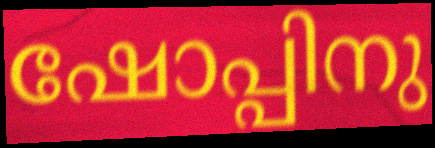
ഷോപ്പിനു